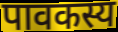
पावकस्य